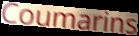
Coumarins